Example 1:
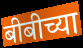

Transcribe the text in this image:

बीबीच्या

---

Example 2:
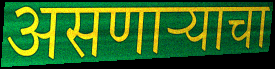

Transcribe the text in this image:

असणाऱ्याचा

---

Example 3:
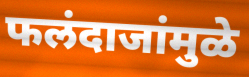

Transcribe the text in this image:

फलंदाजांमुळे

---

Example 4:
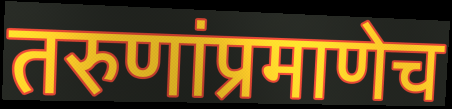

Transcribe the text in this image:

तरुणांप्रमाणेच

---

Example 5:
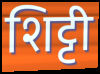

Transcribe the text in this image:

शिट्टी